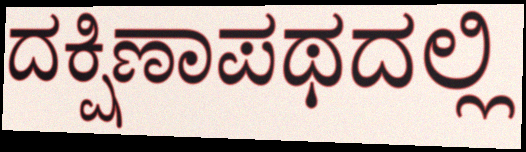
ದಕ್ಷಿಣಾಪಥದಲ್ಲಿ